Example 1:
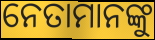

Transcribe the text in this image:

ନେତାମାନଙ୍କୁ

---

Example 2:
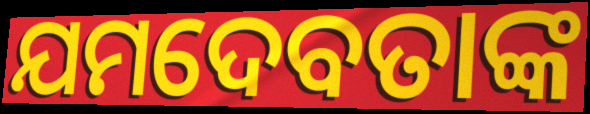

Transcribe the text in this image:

ଯମଦେବତାଙ୍କ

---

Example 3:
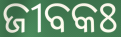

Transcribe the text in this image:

ଜୀବକଃ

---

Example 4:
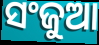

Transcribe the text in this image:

ସଂଜୁଆ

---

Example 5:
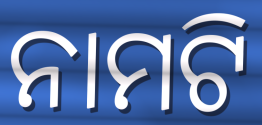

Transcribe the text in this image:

ନାମଟି